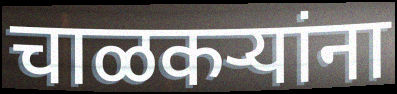
चाळकऱ्यांना